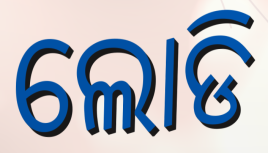
ଲୋଡି